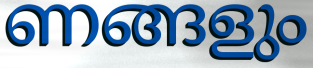
ണങ്ങളും